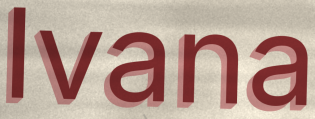
Ivana